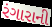
રંગારાની